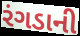
રંગડાની